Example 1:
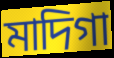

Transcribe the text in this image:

মাদিগা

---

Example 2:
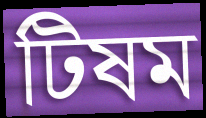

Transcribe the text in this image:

টিষম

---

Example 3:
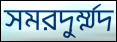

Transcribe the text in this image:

সমরদুর্ম্মদ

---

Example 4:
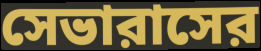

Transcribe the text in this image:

সেভারাসের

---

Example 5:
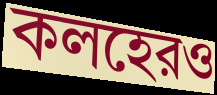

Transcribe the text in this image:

কলহেরও